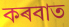
কৰবাত